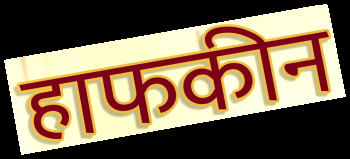
हाफकीन